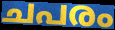
ചപരം